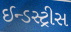
ઈન્ડસ્ટ્રીસ